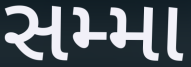
સમ્મા